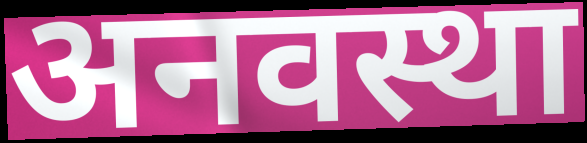
अनवस्था